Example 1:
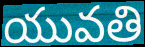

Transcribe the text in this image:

యువతి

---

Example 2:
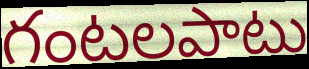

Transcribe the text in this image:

గంటలపాటు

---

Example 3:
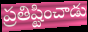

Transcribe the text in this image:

ప్రతిష్టించాడు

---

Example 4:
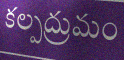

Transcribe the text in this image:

కల్పద్రుమం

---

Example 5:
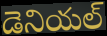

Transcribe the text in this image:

డెనియల్